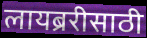
लायब्ररीसाठी